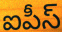
ఐపీస్